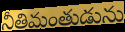
నీతిమంతుడును